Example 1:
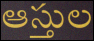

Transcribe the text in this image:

ఆస్తుల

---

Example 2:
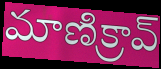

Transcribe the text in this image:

మాణిక్రావ్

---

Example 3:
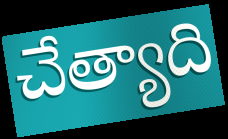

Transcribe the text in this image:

చేత్యాది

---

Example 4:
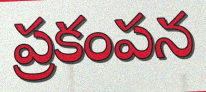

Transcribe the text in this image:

ప్రకంపన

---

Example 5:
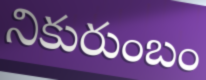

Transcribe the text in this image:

నికురుంబం